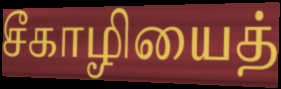
சீகாழியைத்